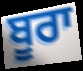
ਬੂਰਾ